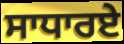
ਸਾਧਾਰਏ